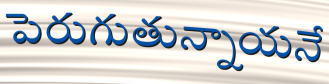
పెరుగుతున్నాయనే